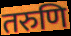
तरुणि